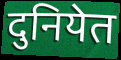
दुनियेत